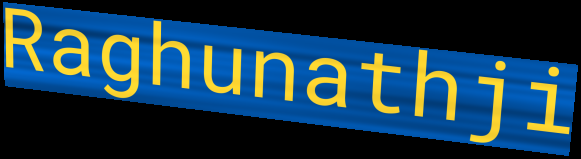
Raghunathji